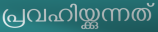
പ്രവഹിയ്ക്കുന്നത്